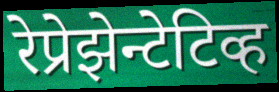
रेप्रेझेन्टेटिव्ह